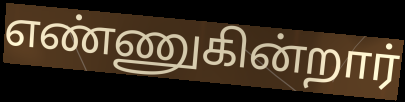
எண்ணுகின்றார்